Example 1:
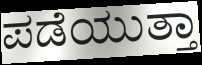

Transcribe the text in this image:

ಪಡೆಯುತ್ತಾ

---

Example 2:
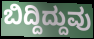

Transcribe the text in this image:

ಬಿದ್ದಿದ್ದುವು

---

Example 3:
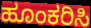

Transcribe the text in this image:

ಹೂಂಕರಿಸಿ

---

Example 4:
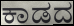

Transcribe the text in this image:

ಕಾಡದ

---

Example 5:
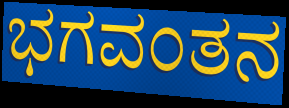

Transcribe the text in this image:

ಭಗವಂತನ